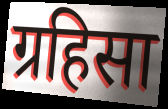
ग्रहिसा